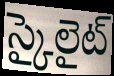
స్కైలైట్